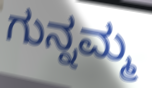
ಗುನ್ನಮ್ಮ